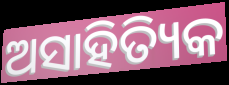
ଅସାହିତ୍ୟିକ